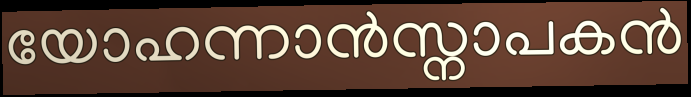
യോഹന്നാൻസ്നാപകൻ